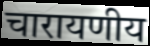
चारायणीय